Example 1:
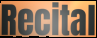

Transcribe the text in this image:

Recital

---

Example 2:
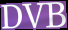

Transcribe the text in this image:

DVB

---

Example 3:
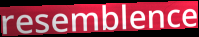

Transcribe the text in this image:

resemblence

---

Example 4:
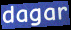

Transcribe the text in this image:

dagar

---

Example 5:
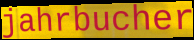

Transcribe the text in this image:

jahrbucher